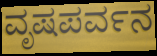
ವೃಷಪರ್ವನ